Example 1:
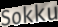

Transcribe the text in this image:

Sokku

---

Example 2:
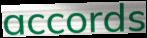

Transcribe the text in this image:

accords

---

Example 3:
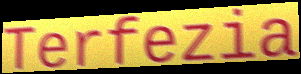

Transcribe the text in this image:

Terfezia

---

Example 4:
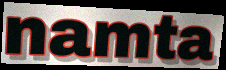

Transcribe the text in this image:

namta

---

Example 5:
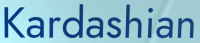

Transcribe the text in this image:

Kardashian